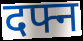
दफ्न